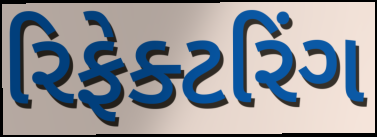
રિફેક્ટરિંગ